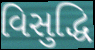
વિસુદ્ધિ